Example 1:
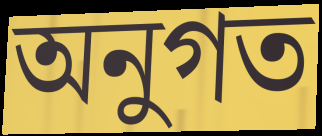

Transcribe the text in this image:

অনুগত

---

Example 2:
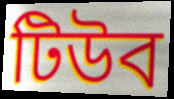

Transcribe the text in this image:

টিউব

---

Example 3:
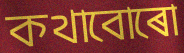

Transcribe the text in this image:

কথাবোৰো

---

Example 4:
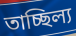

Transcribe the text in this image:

তাচ্ছিল্য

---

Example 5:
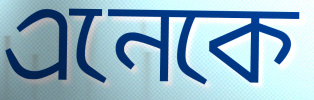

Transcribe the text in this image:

এনেকে